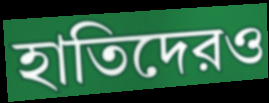
হাতিদেরও